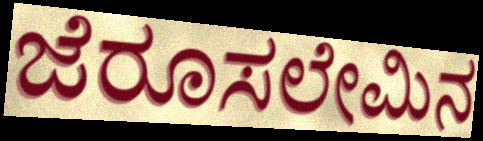
ಜೆರೂಸಲೇಮಿನ